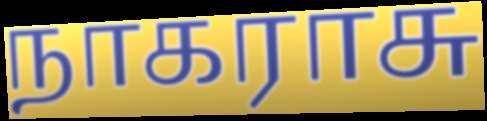
நாகராசு